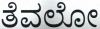
ತೆವಲೋ